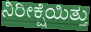
ನಿರೀಕ್ಷೆಯಿತ್ತು